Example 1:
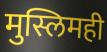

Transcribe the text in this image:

मुस्लिमही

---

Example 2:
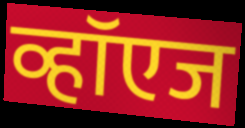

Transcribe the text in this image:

व्हॉएज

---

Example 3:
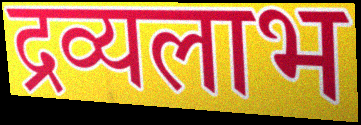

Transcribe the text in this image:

द्रव्यलाभ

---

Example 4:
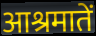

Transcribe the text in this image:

आश्रमातें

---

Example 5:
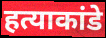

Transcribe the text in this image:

हत्याकांडे